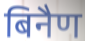
बिनैण